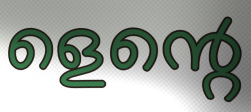
ളെന്റെ